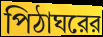
পিঠাঘরের